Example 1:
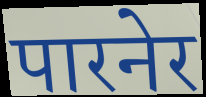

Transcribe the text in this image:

पारनेर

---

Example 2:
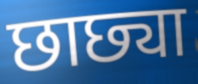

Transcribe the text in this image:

छाछ्या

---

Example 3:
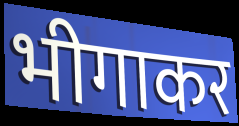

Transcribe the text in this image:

भीगाकर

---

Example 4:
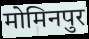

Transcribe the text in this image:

मोमिनपुर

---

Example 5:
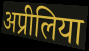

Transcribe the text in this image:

अप्रीलिया